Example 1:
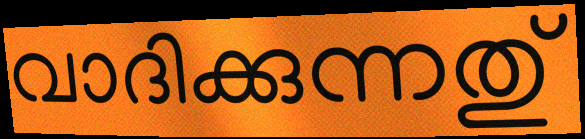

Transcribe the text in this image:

വാദിക്കുന്നതു്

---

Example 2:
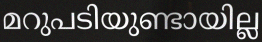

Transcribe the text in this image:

മറുപടിയുണ്ടായില്ല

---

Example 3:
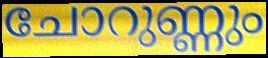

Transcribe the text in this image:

ചോറുണ്ണും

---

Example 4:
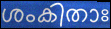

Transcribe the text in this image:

ശംകിതാഃ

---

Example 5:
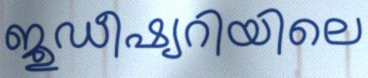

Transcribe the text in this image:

ജുഡീഷ്യറിയിലെ